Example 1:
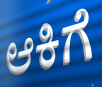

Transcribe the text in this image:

ಆಕಿಗೆ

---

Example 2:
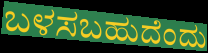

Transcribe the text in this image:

ಬಳಸಬಹುದೆಂದು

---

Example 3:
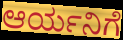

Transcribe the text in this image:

ಆರ್ಯನಿಗೆ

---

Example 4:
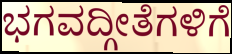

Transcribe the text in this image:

ಭಗವದ್ಗೀತೆಗಳಿಗೆ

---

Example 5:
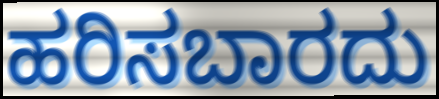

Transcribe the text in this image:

ಹರಿಸಬಾರದು